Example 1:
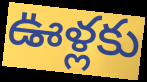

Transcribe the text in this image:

ఊళ్లకు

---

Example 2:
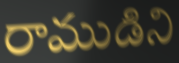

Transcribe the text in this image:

రాముడిని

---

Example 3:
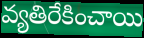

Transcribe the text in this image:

వ్యతిరేకించాయి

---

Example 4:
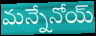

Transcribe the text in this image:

మన్నేనోయ్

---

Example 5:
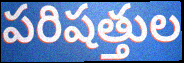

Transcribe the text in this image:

పరిషత్తుల